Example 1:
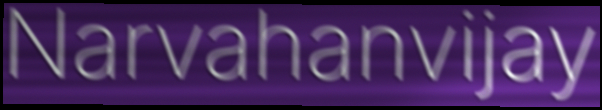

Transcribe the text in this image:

Narvahanvijay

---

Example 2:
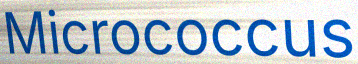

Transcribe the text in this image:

Micrococcus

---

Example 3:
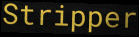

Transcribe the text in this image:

Stripper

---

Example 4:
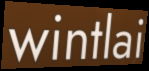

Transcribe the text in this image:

wintlai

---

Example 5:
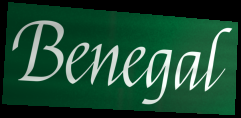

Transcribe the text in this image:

Benegal